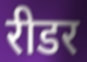
रीडर